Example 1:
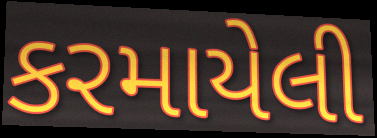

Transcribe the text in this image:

કરમાયેલી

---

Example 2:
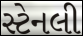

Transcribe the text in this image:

સ્ટેનલી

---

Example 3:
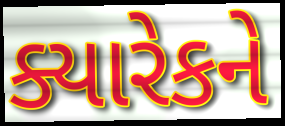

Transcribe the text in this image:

ક્યારેકને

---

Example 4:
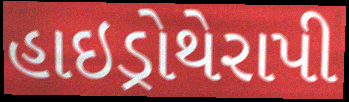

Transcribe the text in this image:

હાઇડ્રોથેરાપી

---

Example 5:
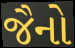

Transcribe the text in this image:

જૈનો